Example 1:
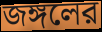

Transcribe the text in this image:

জঙ্গলের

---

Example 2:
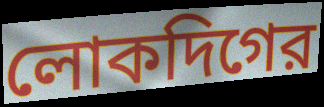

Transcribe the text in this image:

লোকদিগের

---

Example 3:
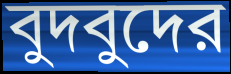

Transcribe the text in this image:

বুদবুদের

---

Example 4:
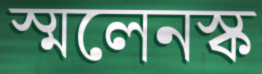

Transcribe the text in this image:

স্মলেনস্ক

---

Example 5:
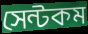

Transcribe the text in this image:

সেন্টকম